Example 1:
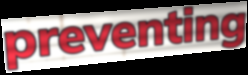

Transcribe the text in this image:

preventing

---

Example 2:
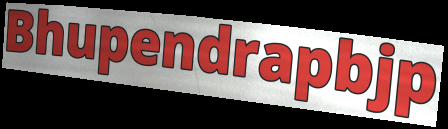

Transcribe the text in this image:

Bhupendrapbjp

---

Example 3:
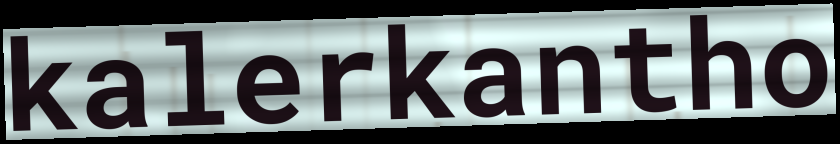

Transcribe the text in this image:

kalerkantho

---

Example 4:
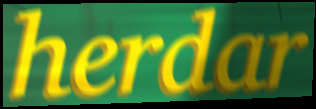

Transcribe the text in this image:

herdar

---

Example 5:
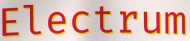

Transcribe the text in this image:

Electrum